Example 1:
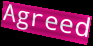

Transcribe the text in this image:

Agreed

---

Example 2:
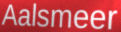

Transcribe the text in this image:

Aalsmeer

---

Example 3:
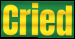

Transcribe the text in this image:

Cried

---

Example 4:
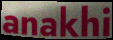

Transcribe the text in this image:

anakhi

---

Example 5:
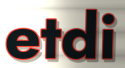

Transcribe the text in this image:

etdi